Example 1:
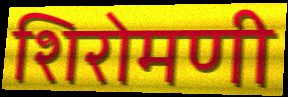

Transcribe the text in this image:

शिरोमणी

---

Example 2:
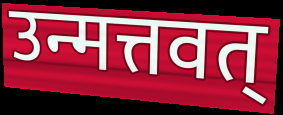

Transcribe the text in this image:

उन्मत्तवत्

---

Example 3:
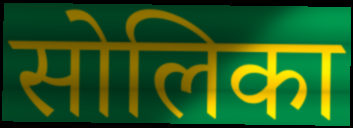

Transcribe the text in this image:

सोलिका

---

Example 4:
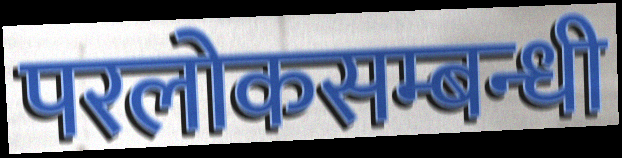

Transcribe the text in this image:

परलोकसम्बन्धी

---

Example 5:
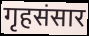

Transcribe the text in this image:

गृहसंसार